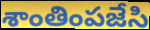
శాంతింపజేసి